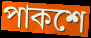
পাকশে